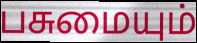
பசுமையும்